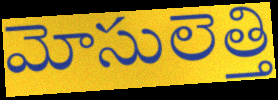
మోసులెత్తి